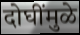
दोघींमुळे